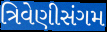
ત્રિવેણીસંગમ